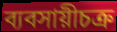
ব্যবসায়ীচক্র